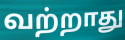
வற்றாது